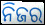
ନିଜର